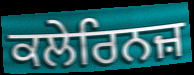
ਕਲੇਰਿਨਜ਼